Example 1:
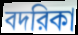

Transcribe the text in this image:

বদরিকা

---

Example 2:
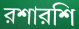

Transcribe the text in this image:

রশারশি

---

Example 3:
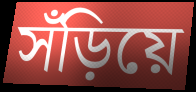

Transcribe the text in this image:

সঁড়িয়ে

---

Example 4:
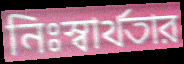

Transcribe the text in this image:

নিঃস্বার্থতার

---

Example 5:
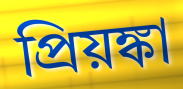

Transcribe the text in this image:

প্রিয়ঙ্কা